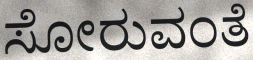
ಸೋರುವಂತೆ